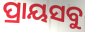
ପ୍ରାୟସବୁ